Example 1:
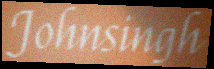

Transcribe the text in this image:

Johnsingh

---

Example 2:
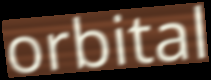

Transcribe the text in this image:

orbital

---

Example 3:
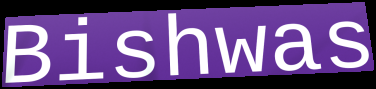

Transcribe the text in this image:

Bishwas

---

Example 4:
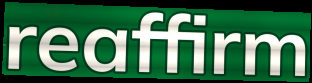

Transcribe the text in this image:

reaffirm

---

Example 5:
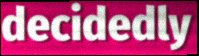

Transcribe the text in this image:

decidedly